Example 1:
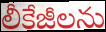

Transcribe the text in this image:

లీకేజీలను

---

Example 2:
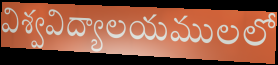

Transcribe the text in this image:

విశ్వవిద్యాలయములలో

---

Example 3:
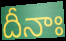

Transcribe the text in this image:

దీనాః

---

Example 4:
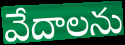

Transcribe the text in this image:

వేదాలను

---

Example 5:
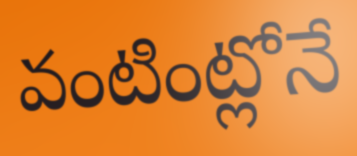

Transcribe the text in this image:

వంటింట్లోనే